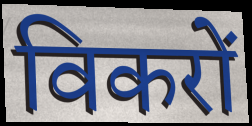
विकरों